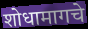
शोधामागचे